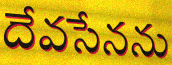
దేవసేనను